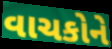
વાચકોને